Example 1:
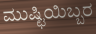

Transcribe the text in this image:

ಮುಷ್ಟಿಯಿಬ್ಬರ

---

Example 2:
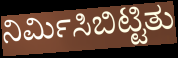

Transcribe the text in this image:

ನಿರ್ಮಿಸಿಬಿಟ್ಟಿತು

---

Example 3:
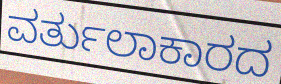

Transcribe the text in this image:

ವರ್ತುಲಾಕಾರದ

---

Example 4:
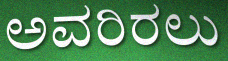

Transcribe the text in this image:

ಅವರಿರಲು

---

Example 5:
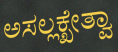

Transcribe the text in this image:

ಅಸಲ್ಲಕ್ಖೇತ್ವಾ